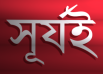
সূৰ্যই